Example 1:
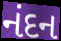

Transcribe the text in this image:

નંદન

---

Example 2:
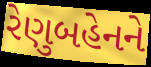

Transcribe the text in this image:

રેણુબહેનને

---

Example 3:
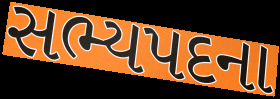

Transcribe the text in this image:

સભ્યપદના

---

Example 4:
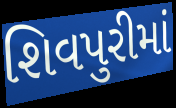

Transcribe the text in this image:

શિવપુરીમાં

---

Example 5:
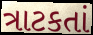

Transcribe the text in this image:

ત્રાટકતાં